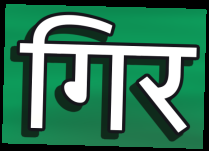
गिर